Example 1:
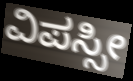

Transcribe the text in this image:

ವಿಪಸ್ಸೀ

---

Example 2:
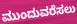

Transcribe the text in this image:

ಮುಂದುವರೆಸಲು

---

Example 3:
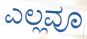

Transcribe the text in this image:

ಎಲ್ಲವೂ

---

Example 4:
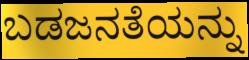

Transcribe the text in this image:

ಬಡಜನತೆಯನ್ನು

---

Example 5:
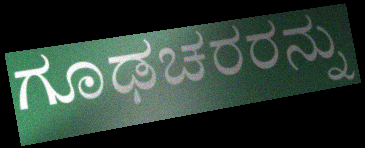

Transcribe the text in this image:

ಗೂಢಚರರನ್ನು